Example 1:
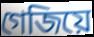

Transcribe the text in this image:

গেজিয়ে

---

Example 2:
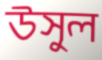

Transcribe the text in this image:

উসুল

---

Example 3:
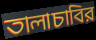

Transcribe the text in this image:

তালাচাবির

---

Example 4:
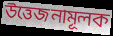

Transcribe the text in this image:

উত্তেজনামূলক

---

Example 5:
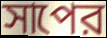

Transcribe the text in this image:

সাপের